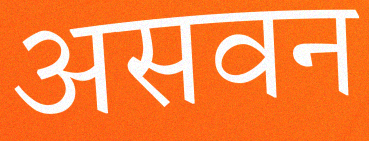
असवन